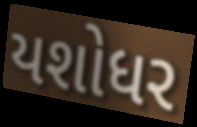
યશોધર